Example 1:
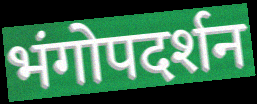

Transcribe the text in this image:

भंगोपदर्शन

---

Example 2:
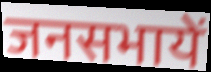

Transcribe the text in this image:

जनसभायें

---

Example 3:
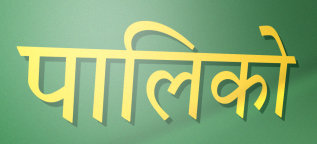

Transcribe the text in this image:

पालिको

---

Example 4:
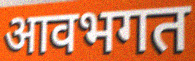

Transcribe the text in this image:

आवभगत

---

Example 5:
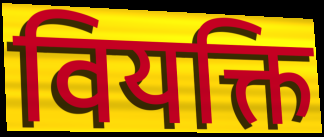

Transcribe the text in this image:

वियक्ति